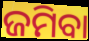
ଜମିବା